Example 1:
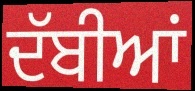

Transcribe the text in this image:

ਦੱਬੀਆਂ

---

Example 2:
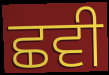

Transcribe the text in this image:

ਛਵੀ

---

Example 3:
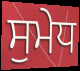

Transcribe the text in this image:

ਸੁਮੇਧ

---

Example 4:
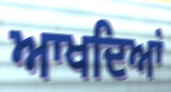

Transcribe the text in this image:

ਆਖਦਿਆਂ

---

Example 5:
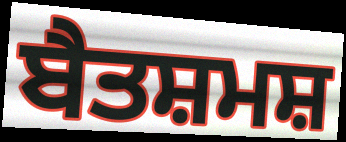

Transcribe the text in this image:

ਬੈਤਸ਼ਮਸ਼